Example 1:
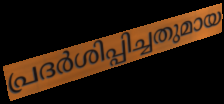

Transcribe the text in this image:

പ്രദർശിപ്പിച്ചതുമായ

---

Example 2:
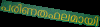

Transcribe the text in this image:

പരിണതഫലമായി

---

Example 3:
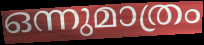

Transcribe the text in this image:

ഒന്നുമാത്രം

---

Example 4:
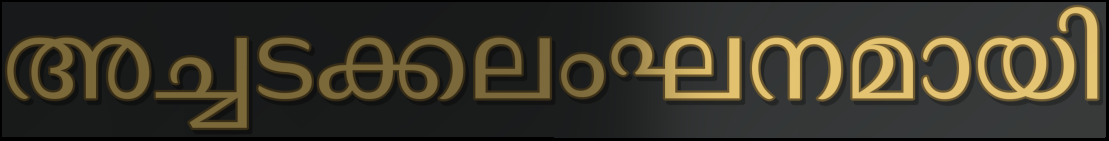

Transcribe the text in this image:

അച്ചടക്കലംഘനമായി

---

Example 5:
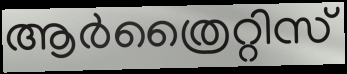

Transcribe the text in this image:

ആർത്രൈറ്റിസ്